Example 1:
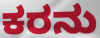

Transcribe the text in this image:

ಕರನು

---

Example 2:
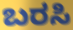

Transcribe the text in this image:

ಬರಸಿ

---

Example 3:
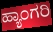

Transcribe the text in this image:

ಹ್ಯಾಂಗರಿ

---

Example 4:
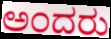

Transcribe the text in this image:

ಅಂದರು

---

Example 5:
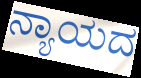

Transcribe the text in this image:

ನ್ಯಾಯದ